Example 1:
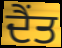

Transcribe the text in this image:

ਦੈਂਤ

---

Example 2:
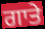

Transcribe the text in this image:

ਗਾਤੇ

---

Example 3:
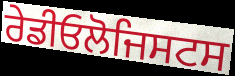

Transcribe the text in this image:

ਰੇਡੀਓਲੋਜਿਸਟਸ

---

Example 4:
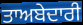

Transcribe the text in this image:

ਤਾਅਬੇਦਾਰੀ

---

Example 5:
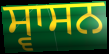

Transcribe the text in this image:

ਸ੍ਵਾਸਨ